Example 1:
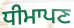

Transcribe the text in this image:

ਧੀਮਾਪਣ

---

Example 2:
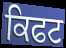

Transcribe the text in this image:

ਕਿਫਟ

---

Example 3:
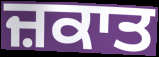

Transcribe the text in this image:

ਜ਼ਕਾਤ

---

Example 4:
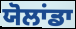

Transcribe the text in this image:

ਯੋਲਾਂਡਾ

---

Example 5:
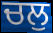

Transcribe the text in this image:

ਚਲੁ